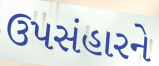
ઉપસંહારને